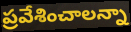
ప్రవేశించాలన్నా